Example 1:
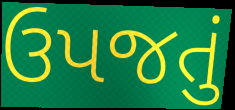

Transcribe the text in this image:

ઉપજતું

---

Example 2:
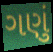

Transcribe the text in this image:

ગણું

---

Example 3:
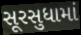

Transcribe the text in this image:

સૂરસુધામાં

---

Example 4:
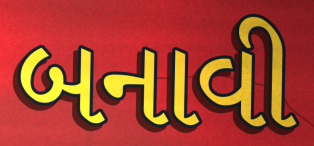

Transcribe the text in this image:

બનાવી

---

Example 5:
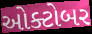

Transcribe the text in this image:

ઓક્ટોબર